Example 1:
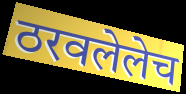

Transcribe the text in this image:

ठरवलेलेच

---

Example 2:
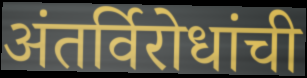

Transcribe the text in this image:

अंतर्विरोधांची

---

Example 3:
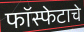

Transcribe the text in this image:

फॉस्फेटाचे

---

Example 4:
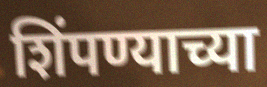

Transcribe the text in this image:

शिंपण्याच्या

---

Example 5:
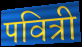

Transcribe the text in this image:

पवित्री